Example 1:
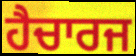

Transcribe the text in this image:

ਹੈਚਾਰਜ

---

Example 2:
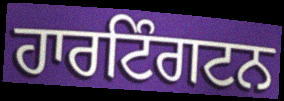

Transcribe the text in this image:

ਹਾਰਟਿੰਗਟਨ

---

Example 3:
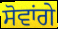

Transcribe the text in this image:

ਸੋਵਾਂਗੇ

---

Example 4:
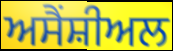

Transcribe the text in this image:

ਅਸੈਂਸ਼ੀਅਲ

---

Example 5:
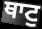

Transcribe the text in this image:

ਥਾਟੁ